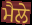
ਮੈਲੇ